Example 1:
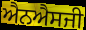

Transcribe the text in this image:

ਐਨਐਸਜੀ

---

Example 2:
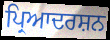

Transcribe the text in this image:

ਪ੍ਰਿਆਦਰਸ਼ਨ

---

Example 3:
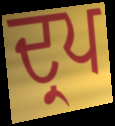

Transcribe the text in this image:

ਦ੍ਰਪ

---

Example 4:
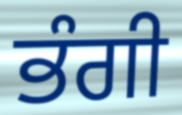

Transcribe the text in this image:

ਭੰਗੀ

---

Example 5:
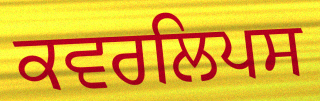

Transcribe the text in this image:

ਕਵਰਲਿਪਸ